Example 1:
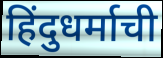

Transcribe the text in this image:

हिंदुधर्माची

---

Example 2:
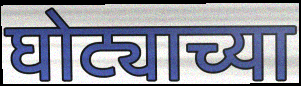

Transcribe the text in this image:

घोट्याच्या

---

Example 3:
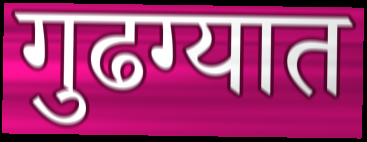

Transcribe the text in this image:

गुढग्यात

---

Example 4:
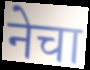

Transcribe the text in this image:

नेचा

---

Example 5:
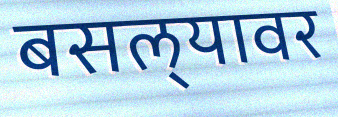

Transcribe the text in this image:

बसल्यावर